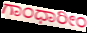
ಗಾಂಧಾರೀಂ